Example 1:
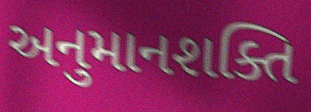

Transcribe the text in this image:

અનુમાનશક્તિ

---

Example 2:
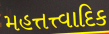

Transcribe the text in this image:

મહત્તત્ત્વાદિક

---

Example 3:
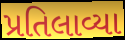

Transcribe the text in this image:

પ્રતિલાવ્યા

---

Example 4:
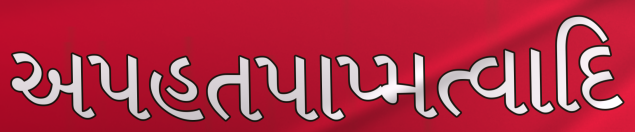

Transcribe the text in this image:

અપહતપાપ્મત્વાદિ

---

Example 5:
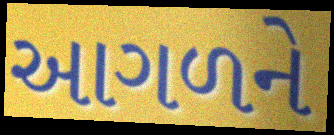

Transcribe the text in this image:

આગળને